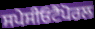
ਸਪੇਸੀਓਟੈਂਪੋਰਲ